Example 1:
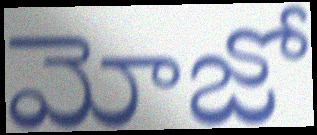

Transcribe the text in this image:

మోజో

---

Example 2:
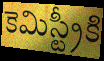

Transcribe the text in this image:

కెమిస్ట్రీకి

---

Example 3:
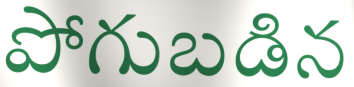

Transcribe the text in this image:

పోగుబడిన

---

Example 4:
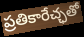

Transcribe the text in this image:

ప్రతికారేచ్ఛతో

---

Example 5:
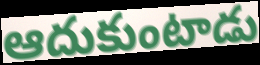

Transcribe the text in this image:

ఆదుకుంటాడు